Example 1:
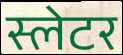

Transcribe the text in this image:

स्लेटर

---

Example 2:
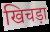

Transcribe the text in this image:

खिचड़ा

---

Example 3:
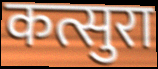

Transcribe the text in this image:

कत्सुरा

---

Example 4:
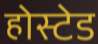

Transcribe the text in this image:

होस्टेड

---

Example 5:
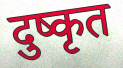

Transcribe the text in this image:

दुष्कृत